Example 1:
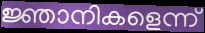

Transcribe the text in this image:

ജ്ഞാനികളെന്ന്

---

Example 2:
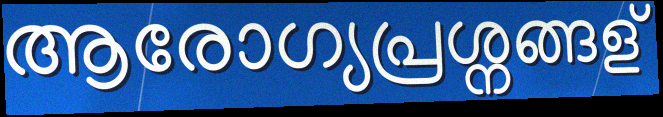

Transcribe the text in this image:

ആരോഗ്യപ്രശ്നങ്ങള്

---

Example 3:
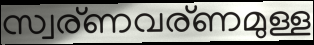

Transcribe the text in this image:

സ്വര്ണവര്ണമുള്ള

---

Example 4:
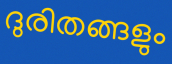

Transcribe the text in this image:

ദുരിതങ്ങളും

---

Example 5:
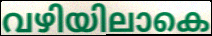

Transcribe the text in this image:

വഴിയിലാകെ